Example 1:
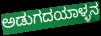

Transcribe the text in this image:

ಅಡುಗದಯಾಳ್ಳನ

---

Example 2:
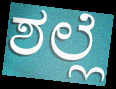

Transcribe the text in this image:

ಶಲ್ಲೆ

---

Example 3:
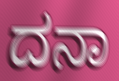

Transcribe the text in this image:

ದನಾ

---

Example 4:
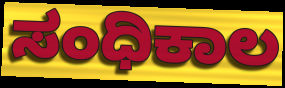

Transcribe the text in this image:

ಸಂಧಿಕಾಲ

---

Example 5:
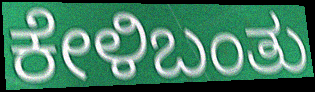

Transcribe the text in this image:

ಕೇಳಿಬಂತು